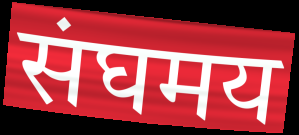
संघमय